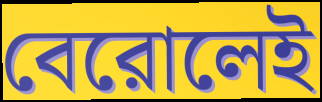
বেরোলেই